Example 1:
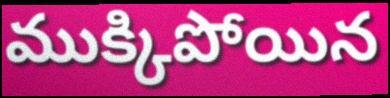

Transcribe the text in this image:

ముక్కిపోయిన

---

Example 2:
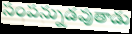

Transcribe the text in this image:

సంపన్నుడవుతాడు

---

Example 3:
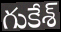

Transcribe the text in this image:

గుకేశ్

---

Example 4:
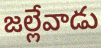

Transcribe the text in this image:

జల్లేవాడు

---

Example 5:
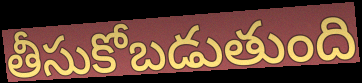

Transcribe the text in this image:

తీసుకోబడుతుంది